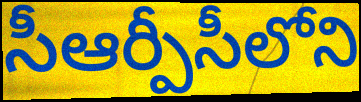
సీఆర్పీసీలోని